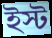
ইস্ট